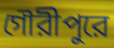
গৌরীপুরে